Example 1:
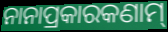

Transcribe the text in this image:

ନାନାପ୍ରକାରକଣାମ୍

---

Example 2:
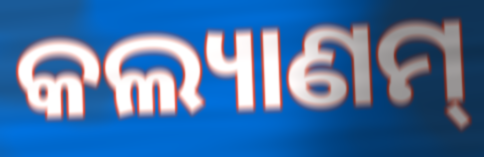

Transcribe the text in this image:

କଲ୍ୟାଣମ୍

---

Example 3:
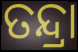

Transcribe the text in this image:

ତନ୍ଦ୍ରା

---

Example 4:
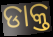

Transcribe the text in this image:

ଡାକ୍ତ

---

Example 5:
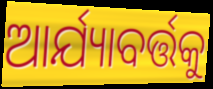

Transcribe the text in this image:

ଆର୍ଯ୍ୟାବର୍ତ୍ତକୁ